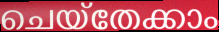
ചെയ്‌തേക്കാം